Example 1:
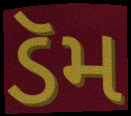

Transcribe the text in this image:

ડૅમ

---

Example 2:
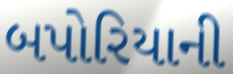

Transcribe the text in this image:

બપોરિયાની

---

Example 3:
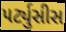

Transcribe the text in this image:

પર્ટ્યુસીસ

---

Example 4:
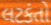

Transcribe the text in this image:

લટકંતો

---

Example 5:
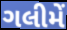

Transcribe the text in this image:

ગલીમેં